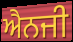
ਐਨਜੀ